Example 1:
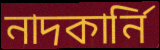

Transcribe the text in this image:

নাদকার্নি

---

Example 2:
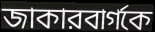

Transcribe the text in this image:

জাকারবার্গকে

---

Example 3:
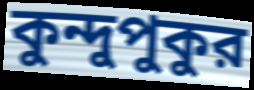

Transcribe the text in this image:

কুন্দুপুকুর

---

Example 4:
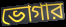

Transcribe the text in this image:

ভোগার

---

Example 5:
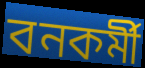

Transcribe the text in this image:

বনকর্মী